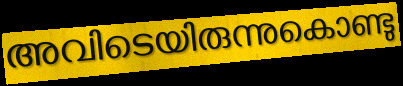
അവിടെയിരുന്നുകൊണ്ടു